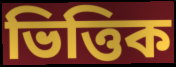
ভিত্তিক